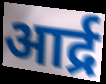
आर्द्र